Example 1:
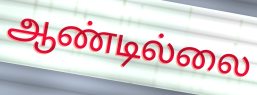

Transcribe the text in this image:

ஆண்டில்லை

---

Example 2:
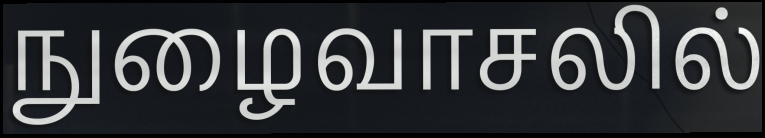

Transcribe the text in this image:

நுழைவாசலில்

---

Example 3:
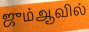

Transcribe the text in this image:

ஜும்ஆவில்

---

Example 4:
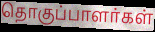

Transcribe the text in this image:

தொகுப்பாளர்கள்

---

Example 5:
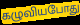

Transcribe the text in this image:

கழுவியபோது